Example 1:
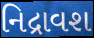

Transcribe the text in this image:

નિદ્રાવશ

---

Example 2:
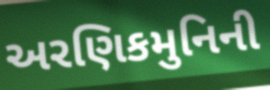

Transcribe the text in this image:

અરણિકમુનિની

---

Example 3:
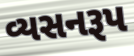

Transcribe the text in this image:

વ્યસનરૂપ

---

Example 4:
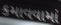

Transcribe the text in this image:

કમાવવામાં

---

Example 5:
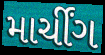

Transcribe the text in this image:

માર્ચીંગ